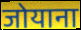
जोयाना